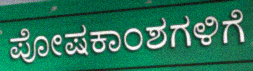
ಪೋಷಕಾಂಶಗಳಿಗೆ